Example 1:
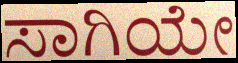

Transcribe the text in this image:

ಸಾಗಿಯೇ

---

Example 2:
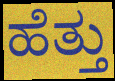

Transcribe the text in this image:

ಹೆತ್ತು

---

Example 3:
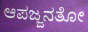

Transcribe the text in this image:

ಆಪಜ್ಜನತೋ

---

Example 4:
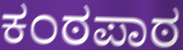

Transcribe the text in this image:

ಕಂಠಪಾಠ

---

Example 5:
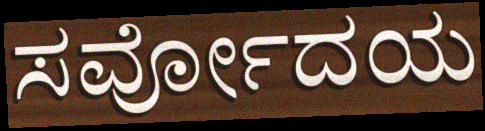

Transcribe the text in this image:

ಸರ್ವೋದಯ